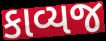
કાવ્યજ